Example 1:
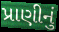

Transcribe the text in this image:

પ્રાણીનું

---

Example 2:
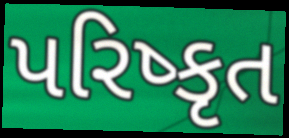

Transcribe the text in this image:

પરિષ્કૃત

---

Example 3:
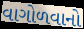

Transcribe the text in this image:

વાગોળવાનો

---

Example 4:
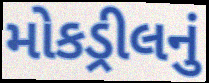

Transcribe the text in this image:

મોકડ્રીલનું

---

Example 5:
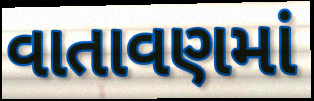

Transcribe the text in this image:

વાતાવણમાં